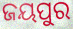
ଜୟପୁର